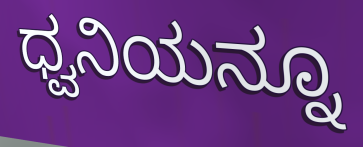
ಧ್ವನಿಯನ್ನೂ